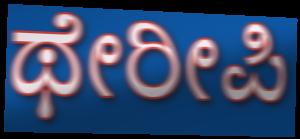
ಥೇರೀಪಿ